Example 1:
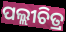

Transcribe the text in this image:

ପଲ୍ଲୀଚିତ୍ର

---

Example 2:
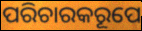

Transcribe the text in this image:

ପରିଚାରକରୂପେ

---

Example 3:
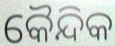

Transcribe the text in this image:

କୈନ୍ଦିକ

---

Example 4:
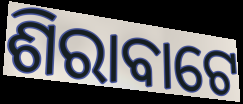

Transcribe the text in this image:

ଶିରାବାଟେ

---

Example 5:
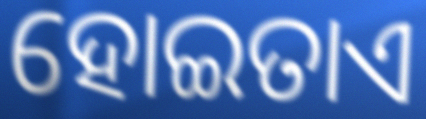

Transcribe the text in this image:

ହୋଇତାଏ